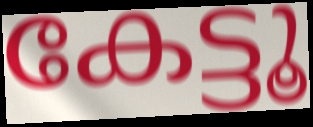
കേട്ടൂ